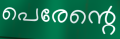
പെരേന്റെ